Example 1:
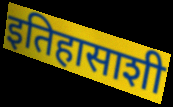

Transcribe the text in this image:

इतिहासाशी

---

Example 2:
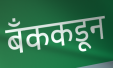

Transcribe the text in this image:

बँककडून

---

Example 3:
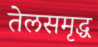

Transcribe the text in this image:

तेलसमृद्ध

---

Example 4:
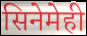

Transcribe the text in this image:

सिनेमेही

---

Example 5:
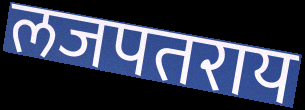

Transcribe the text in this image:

लजपतराय